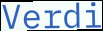
Verdi